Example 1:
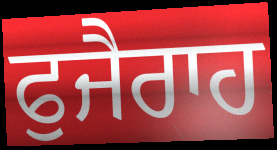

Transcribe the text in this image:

ਫੁਜੈਰਾਹ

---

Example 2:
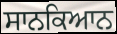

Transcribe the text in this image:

ਸਾਨਕਿਆਨ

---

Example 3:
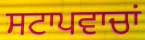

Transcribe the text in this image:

ਸਟਾਪਵਾਚਾਂ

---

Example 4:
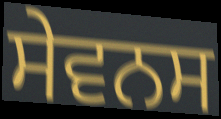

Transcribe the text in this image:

ਸੇਵਨਸ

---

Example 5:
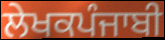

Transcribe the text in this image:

ਲੇਖਕਪੰਜਾਬੀ